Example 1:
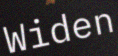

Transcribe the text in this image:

Widen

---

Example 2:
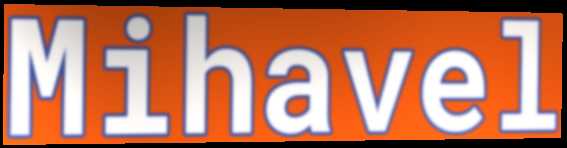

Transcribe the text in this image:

Mihavel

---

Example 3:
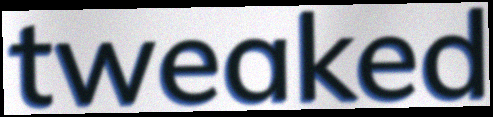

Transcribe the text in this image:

tweaked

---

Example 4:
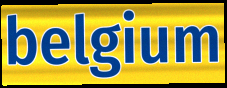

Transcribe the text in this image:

belgium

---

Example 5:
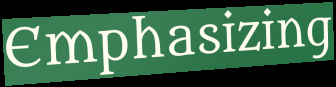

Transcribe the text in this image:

Emphasizing